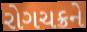
રોગચક્રને